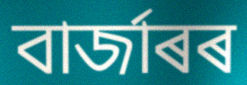
বাৰ্জাৰৰ